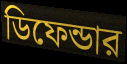
ডিফেন্ডার